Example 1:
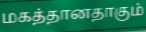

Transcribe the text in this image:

மகத்தானதாகும்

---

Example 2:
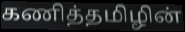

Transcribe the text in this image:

கணித்தமிழின்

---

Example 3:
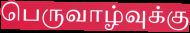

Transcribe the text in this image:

பெருவாழ்வுக்கு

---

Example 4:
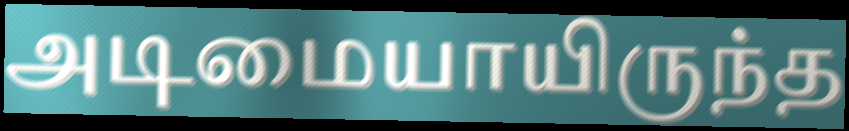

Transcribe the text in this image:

அடிமையாயிருந்த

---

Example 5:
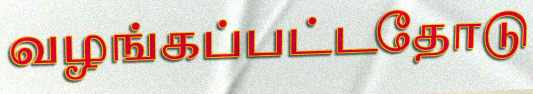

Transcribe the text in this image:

வழங்கப்பட்டதோடு